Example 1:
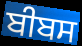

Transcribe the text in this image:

ਬੀਬਸ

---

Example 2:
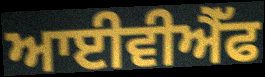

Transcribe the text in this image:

ਆਈਵੀਐੱਫ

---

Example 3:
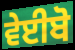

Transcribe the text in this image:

ਵੇਈਬੋ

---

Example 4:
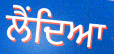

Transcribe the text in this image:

ਲੈਂਦਿਆ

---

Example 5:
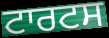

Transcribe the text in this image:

ਟਾਰਟਸ